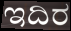
ಇದಿರ